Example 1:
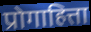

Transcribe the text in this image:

प्रोगाहित्ता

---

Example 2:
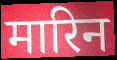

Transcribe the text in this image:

मारिन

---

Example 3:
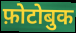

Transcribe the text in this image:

फ़ोटोबुक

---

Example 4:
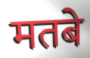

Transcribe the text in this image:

मतबे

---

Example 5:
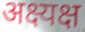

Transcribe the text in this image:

अक्ष्यक्ष